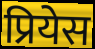
प्रियेस